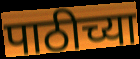
पाठीच्या